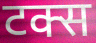
टक्स